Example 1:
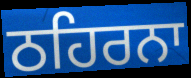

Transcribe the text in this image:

ਠਹਿਰਨਾ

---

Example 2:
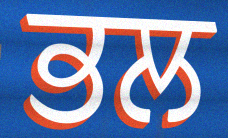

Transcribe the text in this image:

ਭਲ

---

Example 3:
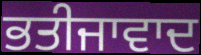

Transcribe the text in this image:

ਭਤੀਜਾਵਾਦ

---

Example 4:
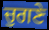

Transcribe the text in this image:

ਚੁਗਣੇ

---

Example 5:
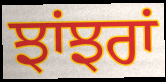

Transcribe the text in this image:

ਝਾਂਝਰਾਂ